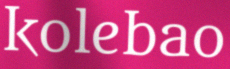
kolebao